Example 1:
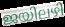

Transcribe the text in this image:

ജയിലഴി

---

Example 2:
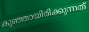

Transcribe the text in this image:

കുഞ്ഞായിരിക്കുന്നത്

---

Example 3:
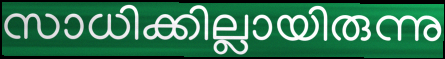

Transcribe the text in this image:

സാധിക്കില്ലായിരുന്നു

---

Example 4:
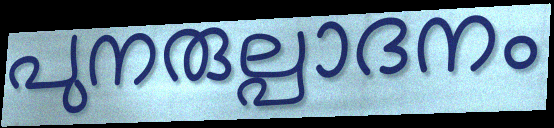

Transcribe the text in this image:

പുനരുല്പാദനം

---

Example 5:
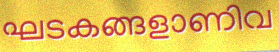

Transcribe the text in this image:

ഘടകങ്ങളാണിവ